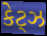
કેટ્ઝ